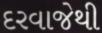
દરવાજેથી